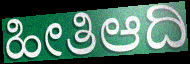
ಹೀತಿಆದಿ